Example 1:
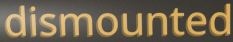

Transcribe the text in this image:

dismounted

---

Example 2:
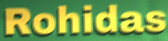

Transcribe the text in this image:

Rohidas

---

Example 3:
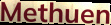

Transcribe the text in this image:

Methuen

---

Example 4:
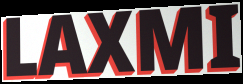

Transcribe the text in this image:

LAXMI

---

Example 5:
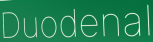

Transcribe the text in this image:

Duodenal